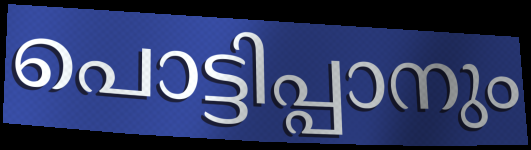
പൊട്ടിപ്പാനും